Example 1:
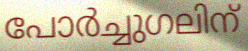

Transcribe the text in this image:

പോർച്ചുഗലിന്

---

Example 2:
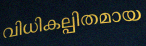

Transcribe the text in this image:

വിധികല്പിതമായ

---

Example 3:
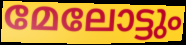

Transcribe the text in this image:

മേലോട്ടും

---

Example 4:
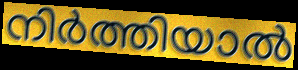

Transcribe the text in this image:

നിർത്തിയാൽ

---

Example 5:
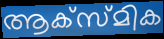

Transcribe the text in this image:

ആക്സ്മിക